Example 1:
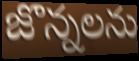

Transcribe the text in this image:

జొన్నలను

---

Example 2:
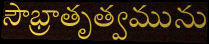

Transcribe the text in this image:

సౌభ్రాతృత్వమును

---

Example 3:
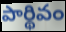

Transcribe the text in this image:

పార్థివం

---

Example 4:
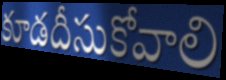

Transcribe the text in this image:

కూడదీసుకోవాలి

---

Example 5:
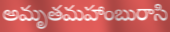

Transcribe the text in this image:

అమృతమహాంబురాసి